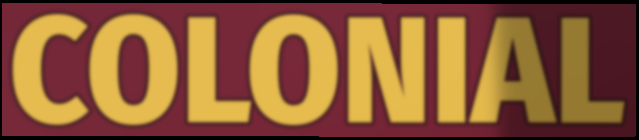
COLONIAL